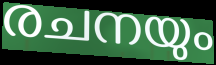
രചനയും